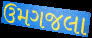
ઉમગજલા